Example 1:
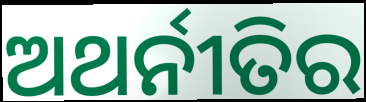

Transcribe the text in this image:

ଅଥର୍ନୀତିର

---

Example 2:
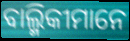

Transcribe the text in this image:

ବାଲ୍ମିକୀମାନେ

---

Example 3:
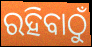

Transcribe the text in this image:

ରହିବାଠୁଁ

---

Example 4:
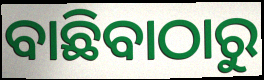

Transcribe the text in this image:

ବାଛିବାଠାରୁ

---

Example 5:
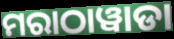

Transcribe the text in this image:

ମରାଠାୱାଡା